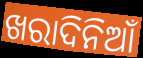
ଖରାଦିନିଆଁ